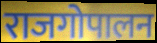
राजगोपालन